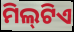
ମିଲ୍‌ଟିଏ